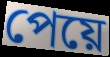
পেয়ে